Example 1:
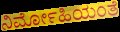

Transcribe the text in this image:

ನಿರ್ಮೋಹಿಯಂತೆ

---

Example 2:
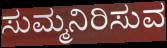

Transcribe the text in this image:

ಸುಮ್ಮನಿರಿಸುವ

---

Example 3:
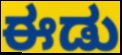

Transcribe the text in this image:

ಈಡು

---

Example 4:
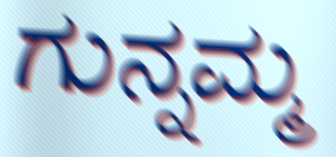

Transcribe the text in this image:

ಗುನ್ನಮ್ಮ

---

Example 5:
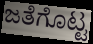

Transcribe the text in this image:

ಜತೆಗೊಟ್ಟ